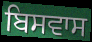
ਬਿਸਵਾਸ